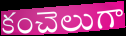
కంచెలుగా